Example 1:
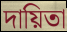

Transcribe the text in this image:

দায়িতা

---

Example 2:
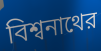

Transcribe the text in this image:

বিশ্বনাথের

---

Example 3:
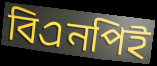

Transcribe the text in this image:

বিএনপিই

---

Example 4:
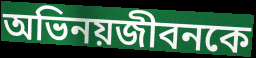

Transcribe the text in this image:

অভিনয়জীবনকে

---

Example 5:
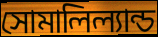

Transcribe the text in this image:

সোমালিল্যান্ড